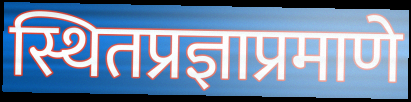
स्थितप्रज्ञाप्रमाणे